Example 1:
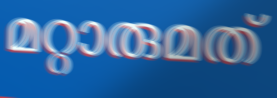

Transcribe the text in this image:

മറ്റാരുമത്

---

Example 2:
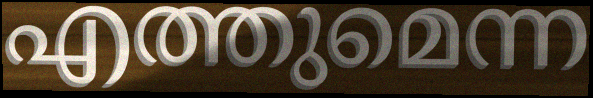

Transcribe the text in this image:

എത്തുമെന്ന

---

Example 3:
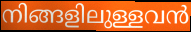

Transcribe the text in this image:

നിങ്ങളിലുള്ളവൻ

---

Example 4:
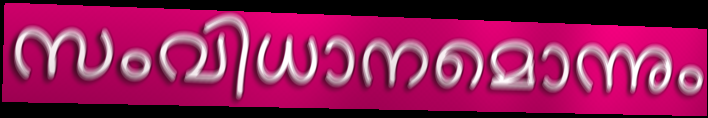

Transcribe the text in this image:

സംവിധാനമൊന്നും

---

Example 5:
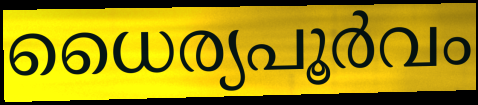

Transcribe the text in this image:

ധൈര്യപൂർവം